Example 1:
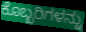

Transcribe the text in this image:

ಕೊಬ್ಬರಿಗಳನ್ನು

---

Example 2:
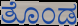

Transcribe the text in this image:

ತೊಂಡ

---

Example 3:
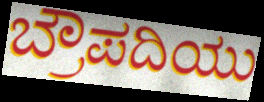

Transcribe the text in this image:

ಬ್ರೌಪದಿಯು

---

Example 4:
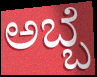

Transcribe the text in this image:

ಅಬ್ಬೆ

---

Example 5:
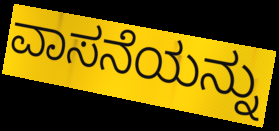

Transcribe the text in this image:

ವಾಸನೆಯನ್ನು